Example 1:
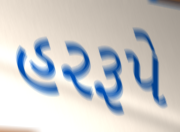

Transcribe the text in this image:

હરરૂપે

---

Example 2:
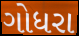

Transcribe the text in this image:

ગોધરા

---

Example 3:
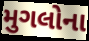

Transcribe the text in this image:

મુગલોના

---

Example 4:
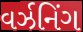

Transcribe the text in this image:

વર્ઝનિંગ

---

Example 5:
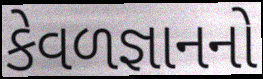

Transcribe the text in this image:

કેવળજ્ઞાનનો